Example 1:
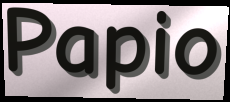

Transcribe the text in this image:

Papio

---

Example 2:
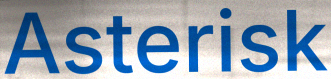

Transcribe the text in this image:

Asterisk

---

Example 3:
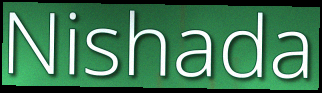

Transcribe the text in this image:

Nishada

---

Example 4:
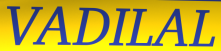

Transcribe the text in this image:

VADILAL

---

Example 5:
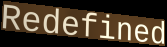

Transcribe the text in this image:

Redefined